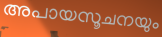
അപായസൂചനയും